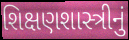
શિક્ષણશાસ્ત્રીનું